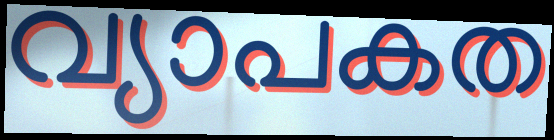
വ്യാപകത